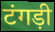
टंगड़ी